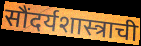
सौंदर्यशास्त्राची